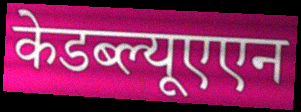
केडब्ल्यूएएन